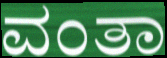
ವಂತಾ